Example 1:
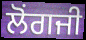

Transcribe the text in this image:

ਲੋਂਗਜੀ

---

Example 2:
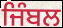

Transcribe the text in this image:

ਜਿੰਬਲ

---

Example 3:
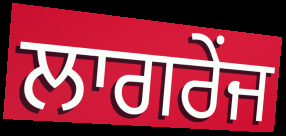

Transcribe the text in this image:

ਲਾਗਰੇਂਜ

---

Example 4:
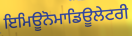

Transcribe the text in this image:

ਇਮਿਊਨੋਮਾਡਿਊਲੇਟਰੀ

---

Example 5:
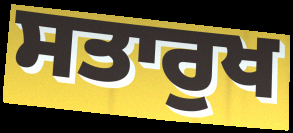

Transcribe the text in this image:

ਸਤਾਰੁਖ